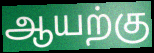
ஆயற்கு